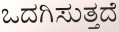
ಒದಗಿಸುತ್ತದೆ